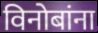
विनोबांना